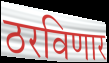
ठरविणार